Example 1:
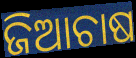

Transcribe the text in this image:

ଜିଆଚାଷ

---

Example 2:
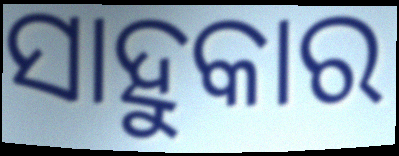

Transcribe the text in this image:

ସାହୁକାର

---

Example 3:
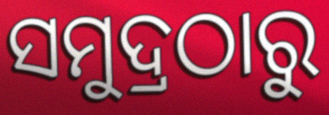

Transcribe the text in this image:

ସମୁଦ୍ରଠାରୁ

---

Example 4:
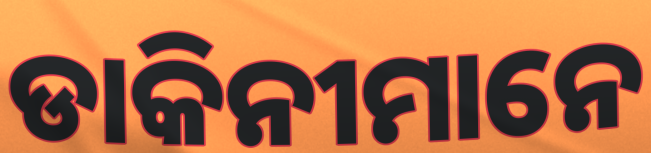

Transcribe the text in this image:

ଡାକିନୀମାନେ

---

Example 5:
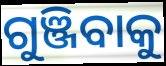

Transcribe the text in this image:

ଗୁଞ୍ଜିବାକୁ